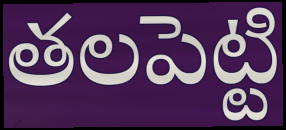
తలపెట్టి